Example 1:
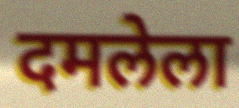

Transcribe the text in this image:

दमलेला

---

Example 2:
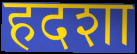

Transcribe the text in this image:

हदशा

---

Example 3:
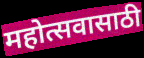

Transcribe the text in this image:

महोत्सवासाठी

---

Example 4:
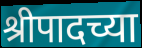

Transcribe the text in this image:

श्रीपादच्या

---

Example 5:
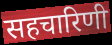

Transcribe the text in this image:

सहचारिणी